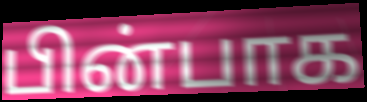
பின்பாக